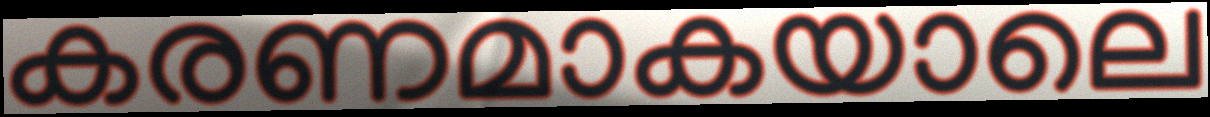
കരണമാകയാലെ